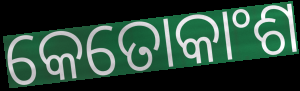
କେତୋକାଂଶ